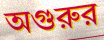
অগুরুর